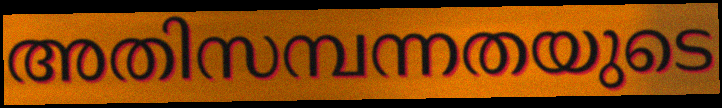
അതിസമ്പന്നതയുടെ